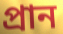
প্ৰান